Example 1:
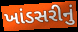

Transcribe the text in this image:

ખાંડસરીનું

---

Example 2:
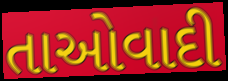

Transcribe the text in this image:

તાઓવાદી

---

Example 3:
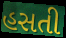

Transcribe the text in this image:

હસતી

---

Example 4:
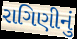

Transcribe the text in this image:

રાગિણીનું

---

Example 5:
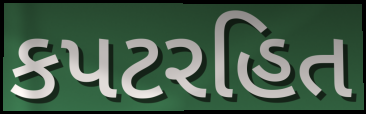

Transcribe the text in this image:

કપટરહિત